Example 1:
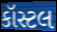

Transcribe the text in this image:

કૉસ્ટલ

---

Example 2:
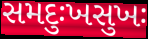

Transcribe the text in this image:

સમદુઃખસુખઃ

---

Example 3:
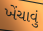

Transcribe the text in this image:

ખેંચાવું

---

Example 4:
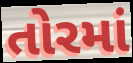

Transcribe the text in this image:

તોરમાં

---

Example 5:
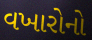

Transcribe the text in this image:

વખારોનો